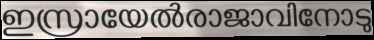
ഇസ്രായേൽരാജാവിനോടു